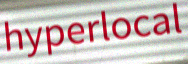
hyperlocal